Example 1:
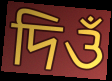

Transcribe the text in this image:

দিওঁ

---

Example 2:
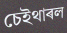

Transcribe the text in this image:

চেইথাৰল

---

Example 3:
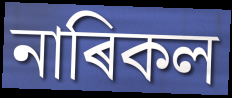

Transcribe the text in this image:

নাৰিকল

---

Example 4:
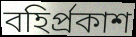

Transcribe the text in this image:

বহিৰ্প্ৰকাশ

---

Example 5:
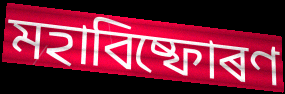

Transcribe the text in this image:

মহাবিষ্ফোৰণ